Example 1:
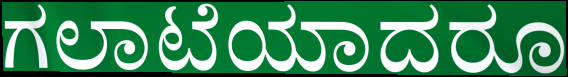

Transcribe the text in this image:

ಗಲಾಟೆಯಾದರೂ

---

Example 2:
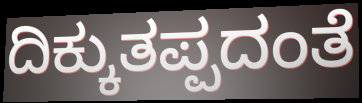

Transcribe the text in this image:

ದಿಕ್ಕುತಪ್ಪದಂತೆ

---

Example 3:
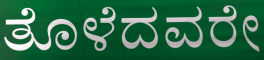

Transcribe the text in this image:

ತೊಳೆದವರೇ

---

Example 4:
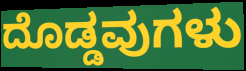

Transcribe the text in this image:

ದೊಡ್ಡವುಗಳು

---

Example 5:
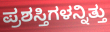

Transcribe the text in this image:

ಪ್ರಶಸ್ತಿಗಳನ್ನಿತ್ತು